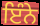
ਇੰਨੇ